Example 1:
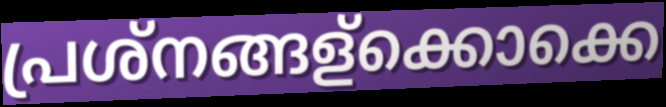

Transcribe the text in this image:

പ്രശ്നങ്ങള്ക്കൊക്കെ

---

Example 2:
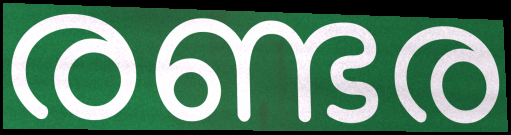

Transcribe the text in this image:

രണ്ടര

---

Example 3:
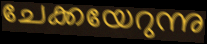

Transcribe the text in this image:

ചേക്കയേറുന്നു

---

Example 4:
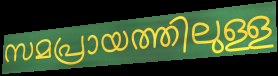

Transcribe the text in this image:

സമപ്രായത്തിലുള്ള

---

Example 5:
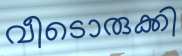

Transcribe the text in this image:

വീടൊരുക്കി